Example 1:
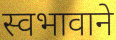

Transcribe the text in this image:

स्वभावाने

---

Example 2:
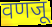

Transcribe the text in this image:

वणजू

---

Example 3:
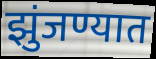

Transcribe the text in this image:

झुंजण्यात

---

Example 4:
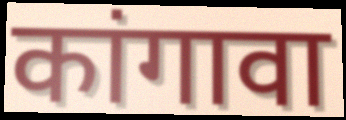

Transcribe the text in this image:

कांगावा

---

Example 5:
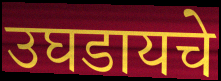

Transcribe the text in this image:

उघडायचे